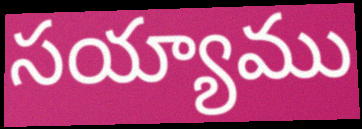
సయ్యాము